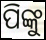
ପିଙ୍କୁ